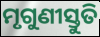
ମୃଗୁଣୀସ୍ତୁତି